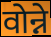
वोन्ने